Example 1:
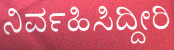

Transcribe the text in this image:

ನಿರ್ವಹಿಸಿದ್ದೀರಿ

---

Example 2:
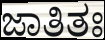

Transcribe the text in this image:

ಜಾತಿತಃ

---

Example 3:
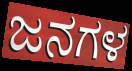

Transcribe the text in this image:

ಜನಗಳ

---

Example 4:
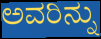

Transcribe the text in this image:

ಅವರಿನ್ನು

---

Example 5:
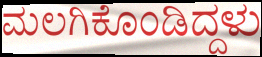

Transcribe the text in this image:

ಮಲಗಿಕೊಂಡಿದ್ದಳು